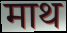
माथ